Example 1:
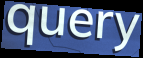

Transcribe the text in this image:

query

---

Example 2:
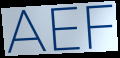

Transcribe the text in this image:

AEF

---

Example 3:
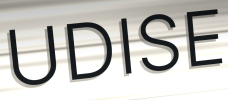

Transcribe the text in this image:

UDISE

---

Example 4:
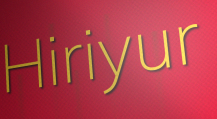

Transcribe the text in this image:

Hiriyur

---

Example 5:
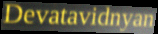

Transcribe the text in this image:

Devatavidnyan